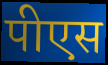
पीएस